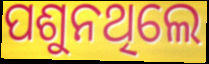
ପଶୁନଥିଲେ